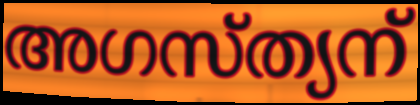
അഗസ്ത്യന്